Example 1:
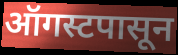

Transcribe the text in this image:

ऑगस्टपासून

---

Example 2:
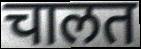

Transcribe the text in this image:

चालत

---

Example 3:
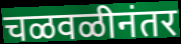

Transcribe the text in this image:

चळवळीनंतर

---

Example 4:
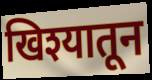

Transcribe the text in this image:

खिश्यातून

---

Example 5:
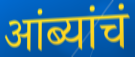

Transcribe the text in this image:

आंब्यांचं